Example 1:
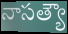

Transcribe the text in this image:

నాసత్యౌ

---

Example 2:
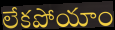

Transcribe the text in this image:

లేకపోయాం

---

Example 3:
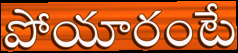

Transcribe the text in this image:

పోయారంటే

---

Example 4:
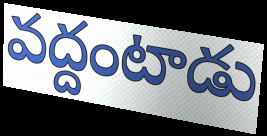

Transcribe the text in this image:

వద్దంటాడు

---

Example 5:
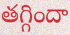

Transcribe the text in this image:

తగ్గిందా